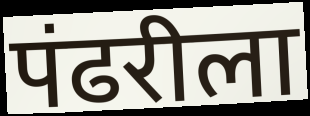
पंढरीला